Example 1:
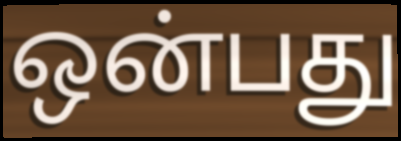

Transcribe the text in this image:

ஒன்பது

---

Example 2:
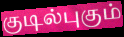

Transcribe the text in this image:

குடில்புகும்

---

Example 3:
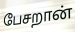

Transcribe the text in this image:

பேசறான்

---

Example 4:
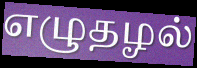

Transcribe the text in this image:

எழுதழல்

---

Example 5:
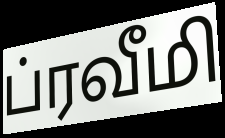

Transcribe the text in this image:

ப்ரவீமி